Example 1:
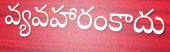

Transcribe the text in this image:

వ్యవహారంకాదు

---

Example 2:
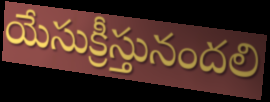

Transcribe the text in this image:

యేసుక్రీస్తునందలి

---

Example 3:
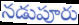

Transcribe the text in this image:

నడుపూరు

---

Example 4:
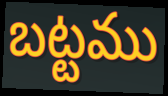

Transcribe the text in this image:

బట్టము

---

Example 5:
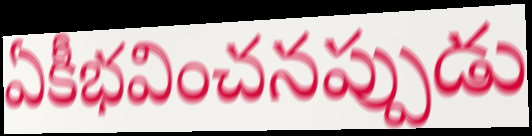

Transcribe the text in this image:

ఏకీభవించనప్పుడు